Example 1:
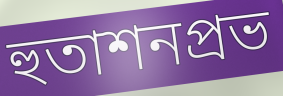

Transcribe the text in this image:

হুতাশনপ্রভ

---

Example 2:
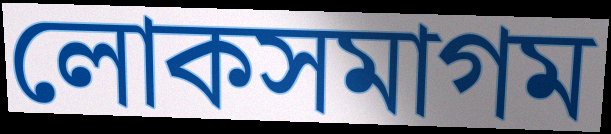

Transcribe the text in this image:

লোকসমাগম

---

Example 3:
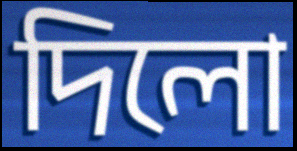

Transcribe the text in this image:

দিলো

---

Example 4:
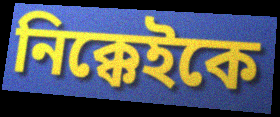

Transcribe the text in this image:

নিক্কেইকে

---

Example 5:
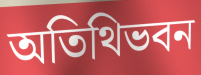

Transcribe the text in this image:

অতিথিভবন